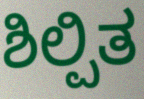
ಶಿಲ್ಪಿತ